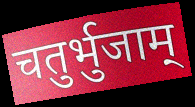
चतुर्भुजाम्